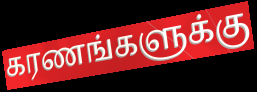
கரணங்களுக்கு